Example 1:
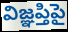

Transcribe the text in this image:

విజ్ఞప్తిపై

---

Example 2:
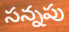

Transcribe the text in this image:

సన్నపు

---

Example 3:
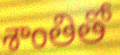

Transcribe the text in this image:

శాంతితో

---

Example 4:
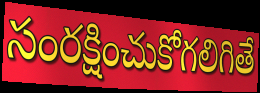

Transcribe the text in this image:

సంరక్షించుకోగలిగితే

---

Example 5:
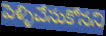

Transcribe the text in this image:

పెళ్ళిచేసుకోనని